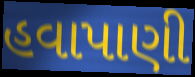
હવાપાણી